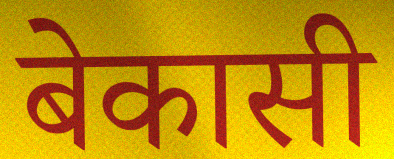
बेकासी